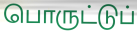
பொருட்டுப்